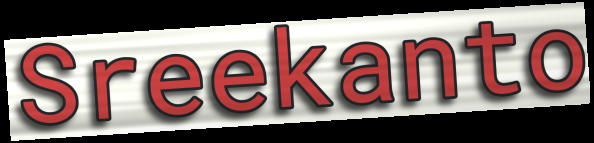
Sreekanto